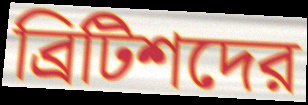
ব্রিটিশদের